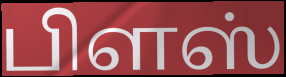
பிளஸ்